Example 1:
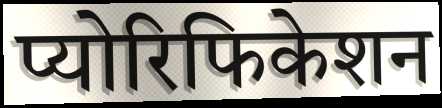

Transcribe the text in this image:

प्योरिफिकेशन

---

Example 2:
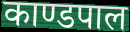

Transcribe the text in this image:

काण्डपाल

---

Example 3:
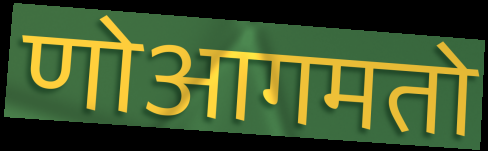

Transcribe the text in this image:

णोआगमतो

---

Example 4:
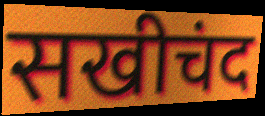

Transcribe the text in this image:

सखीचंद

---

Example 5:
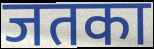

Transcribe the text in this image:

जतका